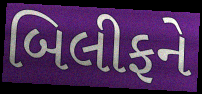
બિલીફને